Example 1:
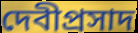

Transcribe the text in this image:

দেবীপ্রসাদ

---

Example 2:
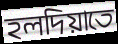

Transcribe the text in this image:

হলদিয়াতে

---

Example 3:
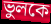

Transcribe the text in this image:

ভুলকে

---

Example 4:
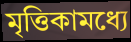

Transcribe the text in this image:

মৃত্তিকামধ্যে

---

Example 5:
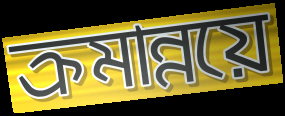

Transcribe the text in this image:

ক্রমান্নয়ে